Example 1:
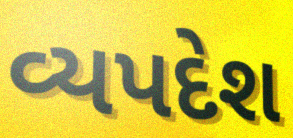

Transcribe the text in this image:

વ્યપદેશ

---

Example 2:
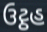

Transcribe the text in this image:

ઉટ્ઠહ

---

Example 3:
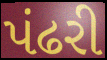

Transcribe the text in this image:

પંઢરી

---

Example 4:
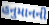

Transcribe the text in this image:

હનુમાનની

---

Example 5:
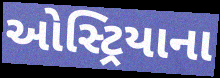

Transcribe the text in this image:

ઓસ્ટ્રિયાના